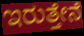
ಇರುತ್ತೇನೆ